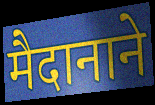
मैदानाने